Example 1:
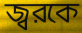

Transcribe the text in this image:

জ্বরকে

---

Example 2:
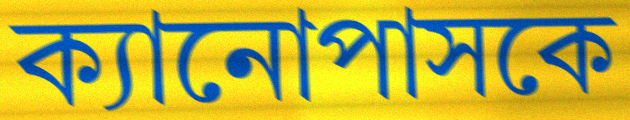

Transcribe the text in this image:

ক্যানোপাসকে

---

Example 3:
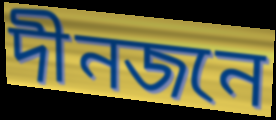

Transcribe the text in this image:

দীনজনে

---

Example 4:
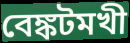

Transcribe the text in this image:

বেঙ্কটমখী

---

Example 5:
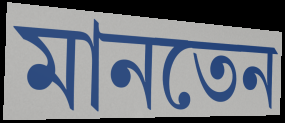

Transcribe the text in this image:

মানতেন